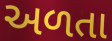
અળતા